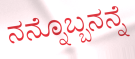
ನನ್ನೊಬ್ಬನನ್ನೆ